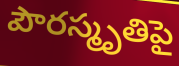
పౌరస్మృతిపై